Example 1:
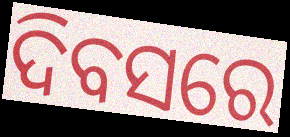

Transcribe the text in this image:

ଦିବସରେ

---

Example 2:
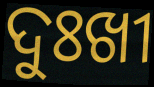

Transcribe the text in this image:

ଦୁଃଖୀ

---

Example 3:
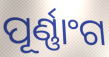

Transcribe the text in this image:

ପୂର୍ଣ୍ଣାଂଗ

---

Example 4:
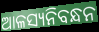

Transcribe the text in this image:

ଆଳସ୍ୟନିବନ୍ଧନ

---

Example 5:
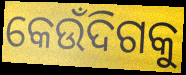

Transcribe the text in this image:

କେଉଁଦିଗକୁ